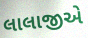
લાલાજીએ